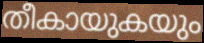
തീകായുകയും